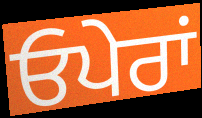
ਓਪੇਰਾਂ